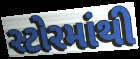
સ્ટોરમાંથી